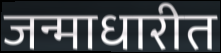
जन्माधारीत